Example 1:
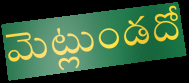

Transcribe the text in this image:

మెట్లుండదో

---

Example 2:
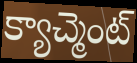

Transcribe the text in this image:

క్యాచ్మెంట్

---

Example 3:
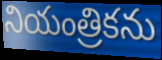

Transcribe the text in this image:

నియంత్రికను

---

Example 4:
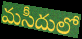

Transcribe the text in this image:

మసీదులో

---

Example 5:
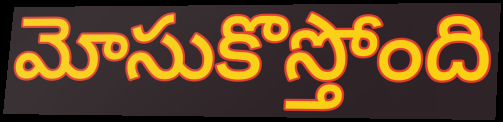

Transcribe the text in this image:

మోసుకొస్తోంది